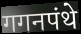
गगनपंथे